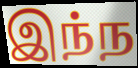
இந்ந